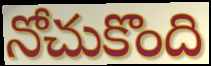
నోచుకొంది